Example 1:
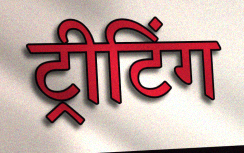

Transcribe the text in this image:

ट्रीटिंग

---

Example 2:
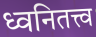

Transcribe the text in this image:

ध्वनितत्त्व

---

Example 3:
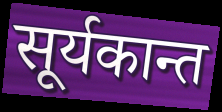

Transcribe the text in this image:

सूर्यकान्त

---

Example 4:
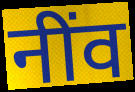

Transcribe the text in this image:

नींव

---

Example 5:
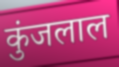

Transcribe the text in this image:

कुंजलाल